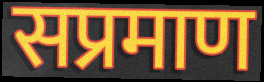
सप्रमाण